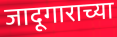
जादूगाराच्या